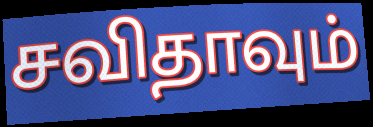
சவிதாவும்